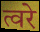
त्वरे